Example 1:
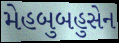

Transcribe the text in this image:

મેહબુબહુસેન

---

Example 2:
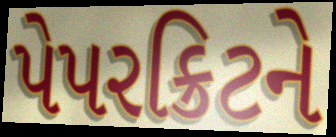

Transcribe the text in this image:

પેપરક્રિટને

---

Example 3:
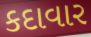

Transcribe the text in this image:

કદાવાર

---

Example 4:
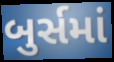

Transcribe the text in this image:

બુર્સમાં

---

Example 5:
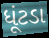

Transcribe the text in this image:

ધૂંટડા